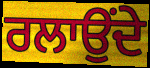
ਰਲਾਉਂਦੇ